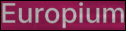
Europium